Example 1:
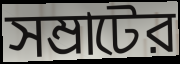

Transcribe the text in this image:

সম্রাটের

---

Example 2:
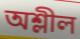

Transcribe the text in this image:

অশ্লীল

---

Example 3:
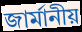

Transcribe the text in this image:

জার্মানীয়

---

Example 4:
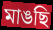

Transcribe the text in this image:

মাঙছি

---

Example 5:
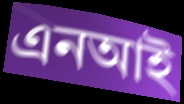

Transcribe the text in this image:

এনআই